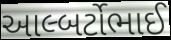
આલ્બર્ટોભાઈ